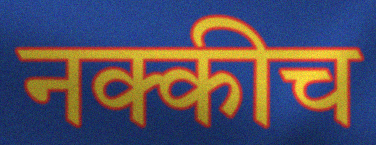
नक्कीच